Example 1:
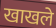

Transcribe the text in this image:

खाखले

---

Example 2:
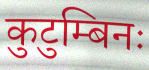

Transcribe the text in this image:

कुटुम्बिनः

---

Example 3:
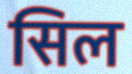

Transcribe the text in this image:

सिल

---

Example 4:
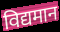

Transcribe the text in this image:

विद्यमान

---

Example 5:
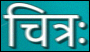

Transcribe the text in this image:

चित्रः